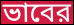
ভাবের